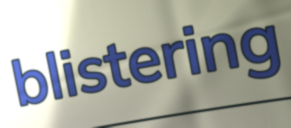
blistering